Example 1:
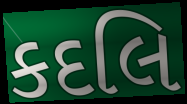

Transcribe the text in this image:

કદલિ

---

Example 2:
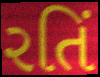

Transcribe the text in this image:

રતિં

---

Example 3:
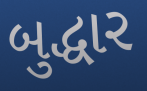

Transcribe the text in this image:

બુદ્ધાર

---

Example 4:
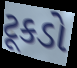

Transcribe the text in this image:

ટૂકડો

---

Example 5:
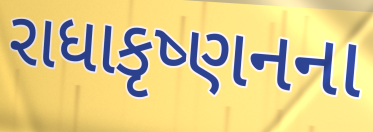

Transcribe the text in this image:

રાધાકૃષ્ણનના